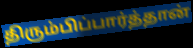
திரும்பிப்பார்த்தான்